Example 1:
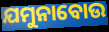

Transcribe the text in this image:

ଯମୁନାବୋଉ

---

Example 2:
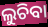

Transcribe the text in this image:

ଲୁଚିବା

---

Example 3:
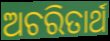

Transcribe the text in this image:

ଅଚରିତାର୍ଥ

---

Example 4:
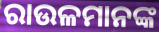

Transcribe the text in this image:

ରାଉଳମାନଙ୍କ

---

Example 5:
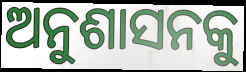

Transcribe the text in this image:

ଅନୁଶାସନକୁ